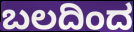
ಬಲದಿಂದ